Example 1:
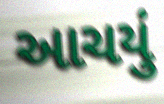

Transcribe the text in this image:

આચયું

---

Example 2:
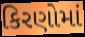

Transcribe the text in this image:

કિરણોમાં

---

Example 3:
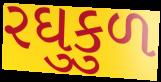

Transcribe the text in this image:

રઘુકુળ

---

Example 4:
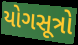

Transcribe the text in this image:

યોગસૂત્રો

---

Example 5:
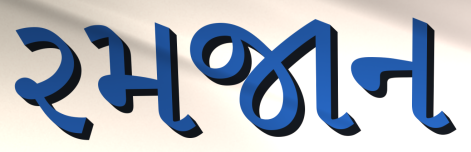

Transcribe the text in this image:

રમજાન